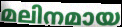
മലിനമായ